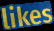
likes